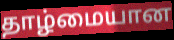
தாழ்மையான